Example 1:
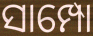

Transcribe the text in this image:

ସାମ୍ପୋ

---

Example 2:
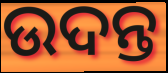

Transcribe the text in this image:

ଉଦନ୍ତ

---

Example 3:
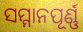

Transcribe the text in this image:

ସମ୍ମାନପୂର୍ଣ୍ଣ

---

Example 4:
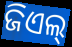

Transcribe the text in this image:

ଜିଏଲ୍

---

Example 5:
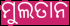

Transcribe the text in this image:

ମୁଲତାନ